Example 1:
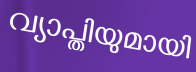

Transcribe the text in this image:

വ്യാപ്തിയുമായി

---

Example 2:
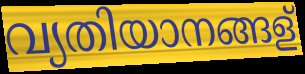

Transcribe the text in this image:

വ്യതിയാനങ്ങള്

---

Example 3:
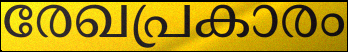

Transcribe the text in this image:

രേഖപ്രകാരം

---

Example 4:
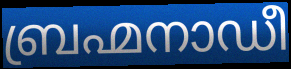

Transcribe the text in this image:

ബ്രഹ്മനാഡീ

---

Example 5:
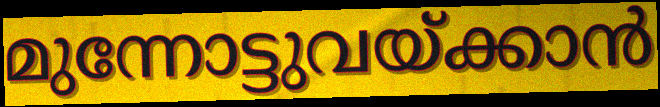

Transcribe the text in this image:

മുന്നോട്ടുവയ്ക്കാൻ